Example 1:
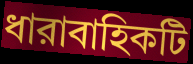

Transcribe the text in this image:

ধারাবাহিকটি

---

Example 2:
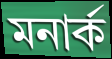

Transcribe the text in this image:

মনার্ক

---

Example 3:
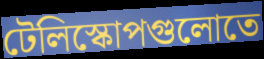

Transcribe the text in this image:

টেলিস্কোপগুলোতে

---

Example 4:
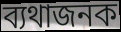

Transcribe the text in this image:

ব্যথাজনক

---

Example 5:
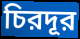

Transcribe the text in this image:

চিরদূর